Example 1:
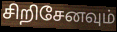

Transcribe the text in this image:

சிறிசேனவும்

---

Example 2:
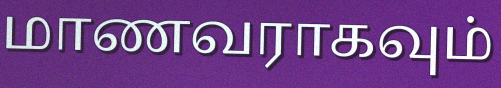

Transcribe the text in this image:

மாணவராகவும்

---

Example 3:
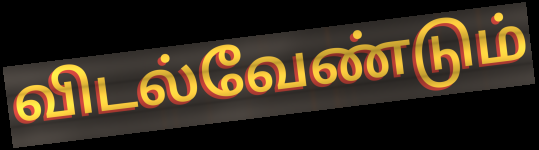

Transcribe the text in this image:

விடல்வேண்டும்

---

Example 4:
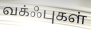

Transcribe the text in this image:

வக்ஃபுகள்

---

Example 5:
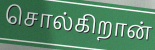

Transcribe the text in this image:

சொல்கிறான்